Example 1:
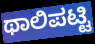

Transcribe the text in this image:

ಥಾಲಿಪಟ್ಟಿ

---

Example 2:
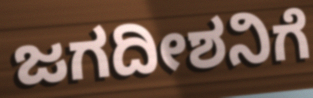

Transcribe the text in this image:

ಜಗದೀಶನಿಗೆ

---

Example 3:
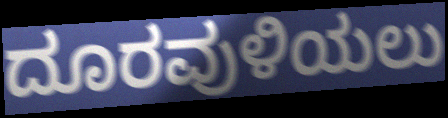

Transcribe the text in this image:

ದೂರವುಳಿಯಲು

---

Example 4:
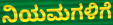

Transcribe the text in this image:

ನಿಯಮಗಳಿಗೆ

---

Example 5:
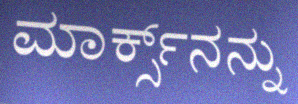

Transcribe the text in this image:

ಮಾರ್ಕ್ಸ್‌ನನ್ನು